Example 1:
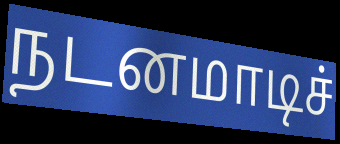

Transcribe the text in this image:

நடனமாடிச்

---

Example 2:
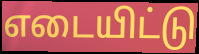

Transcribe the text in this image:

எடையிட்டு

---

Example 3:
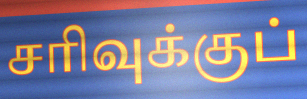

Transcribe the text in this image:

சரிவுக்குப்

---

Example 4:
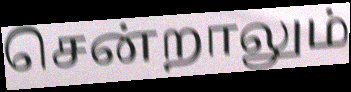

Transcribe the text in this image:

சென்றாலும்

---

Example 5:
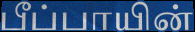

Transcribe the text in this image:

பீப்பாயின்